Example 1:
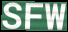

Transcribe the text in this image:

SFW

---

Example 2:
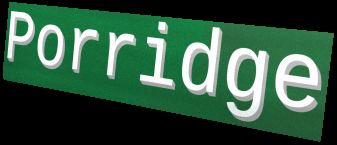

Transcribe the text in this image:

Porridge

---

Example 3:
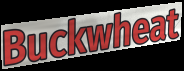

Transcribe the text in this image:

Buckwheat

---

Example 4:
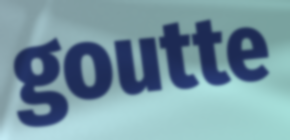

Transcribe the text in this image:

goutte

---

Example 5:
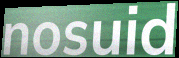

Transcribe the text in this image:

nosuid